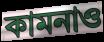
কামনাও